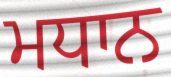
ਮਧਾਨ